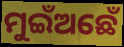
ମୁଇଁଅଛେଁ